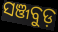
ସଞ୍ଜବୁଡ଼